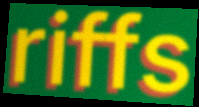
riffs